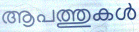
ആപത്തുകൾ